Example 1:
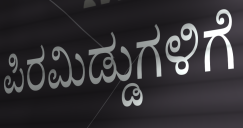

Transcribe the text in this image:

ಪಿರಮಿಡ್ಡುಗಳಿಗೆ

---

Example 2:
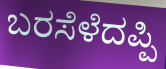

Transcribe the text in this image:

ಬರಸೆಳೆದಪ್ಪಿ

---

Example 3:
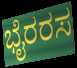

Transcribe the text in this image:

ಭೈರರಸ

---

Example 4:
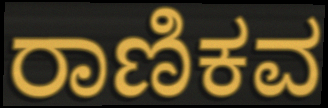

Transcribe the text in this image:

ರಾಣಿಕವ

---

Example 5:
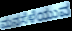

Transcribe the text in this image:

ಮನಸೆಳೆಯುವ